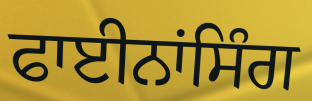
ਫਾਈਨਾਂਸਿੰਗ